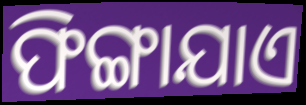
ଫିଙ୍ଗାଯାଏ